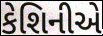
કેશિનીએ